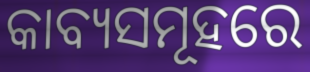
କାବ୍ୟସମୂହରେ